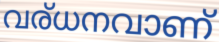
വര്ധനവാണ്